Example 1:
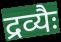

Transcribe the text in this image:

द्रव्यैः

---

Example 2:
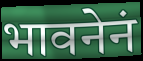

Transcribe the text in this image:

भावनेनं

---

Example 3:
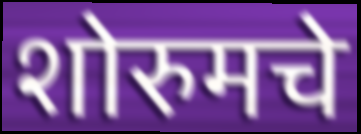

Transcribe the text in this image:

शोरुमचे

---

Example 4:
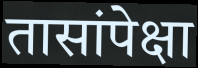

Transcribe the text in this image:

तासांपेक्षा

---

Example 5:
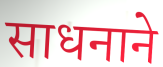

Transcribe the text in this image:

साधनाने